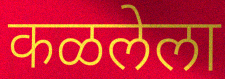
कळलेला